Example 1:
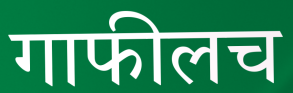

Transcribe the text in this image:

गाफीलच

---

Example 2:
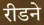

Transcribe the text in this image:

रीडने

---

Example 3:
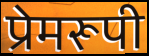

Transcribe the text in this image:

प्रेमरूपी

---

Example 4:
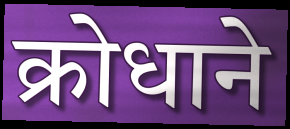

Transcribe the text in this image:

क्रोधाने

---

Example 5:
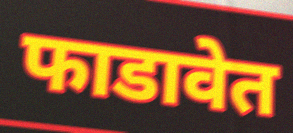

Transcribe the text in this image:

फाडावेत